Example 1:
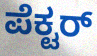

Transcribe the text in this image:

ಪೆಕ್ಟರ್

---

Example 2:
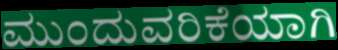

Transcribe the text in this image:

ಮುಂದುವರಿಕೆಯಾಗಿ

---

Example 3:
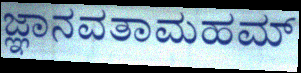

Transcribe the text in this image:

ಜ್ಞಾನವತಾಮಹಮ್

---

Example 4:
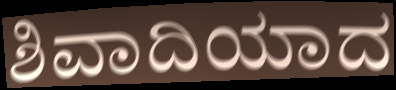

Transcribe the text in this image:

ಶಿವಾದಿಯಾದ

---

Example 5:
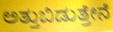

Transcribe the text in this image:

ಅತ್ತುಬಿಡುತ್ತೇನೆ